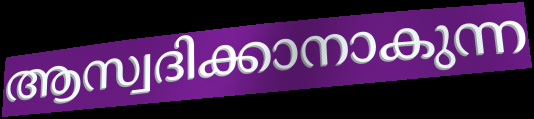
ആസ്വദിക്കാനാകുന്ന